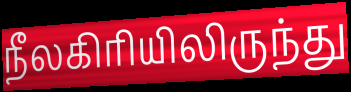
நீலகிரியிலிருந்து